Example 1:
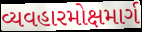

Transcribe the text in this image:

વ્યવહારમોક્ષમાર્ગ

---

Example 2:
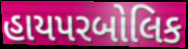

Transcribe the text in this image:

હાયપરબોલિક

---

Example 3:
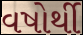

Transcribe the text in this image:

વષોર્થી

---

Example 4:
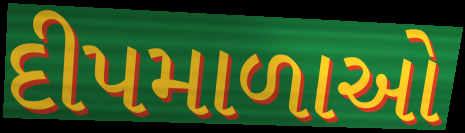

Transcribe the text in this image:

દીપમાળાઓ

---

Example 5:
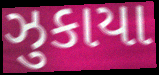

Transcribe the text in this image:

ઝુકાયા